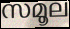
സമൂല